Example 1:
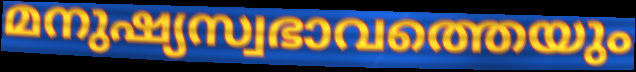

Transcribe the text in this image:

മനുഷ്യസ്വഭാവത്തെയും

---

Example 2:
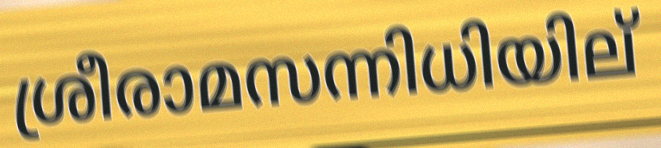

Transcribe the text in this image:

ശ്രീരാമസന്നിധിയില്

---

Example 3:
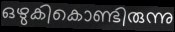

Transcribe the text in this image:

ഒഴുകികൊണ്ടിരുന്നു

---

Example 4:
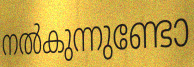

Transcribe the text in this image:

നൽകുന്നുണ്ടോ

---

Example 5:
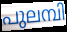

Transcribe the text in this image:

പുലമ്പി